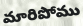
మారిపోము